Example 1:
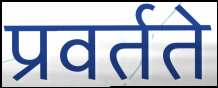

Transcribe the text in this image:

प्रवर्तते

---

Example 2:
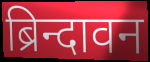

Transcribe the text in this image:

ब्रिन्दावन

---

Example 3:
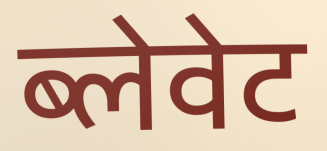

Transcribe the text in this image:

ब्लेवेट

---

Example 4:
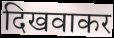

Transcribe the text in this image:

दिखवाकर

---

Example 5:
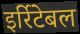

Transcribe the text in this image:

इर्रिटेबल